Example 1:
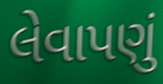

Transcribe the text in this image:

લેવાપણું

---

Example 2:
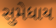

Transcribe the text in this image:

સુમેધાય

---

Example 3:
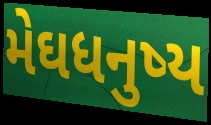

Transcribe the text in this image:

મેઘધનુષ્ય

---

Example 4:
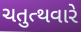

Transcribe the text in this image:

ચતુત્થવારે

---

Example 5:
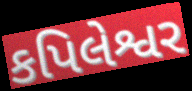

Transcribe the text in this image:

કપિલેશ્વર